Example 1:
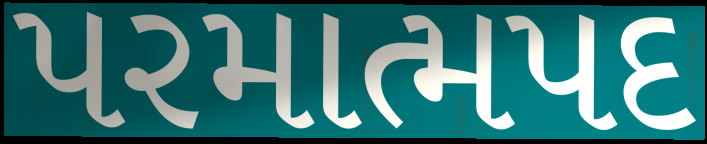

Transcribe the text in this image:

પરમાત્મપદ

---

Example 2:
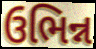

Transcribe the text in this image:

ઉભિન્ન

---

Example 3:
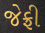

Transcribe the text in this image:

જેફ્રી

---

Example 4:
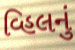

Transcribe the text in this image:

વ્હિલનું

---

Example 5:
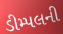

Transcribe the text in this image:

ડીમ્પલની